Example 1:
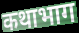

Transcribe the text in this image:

कथाभाग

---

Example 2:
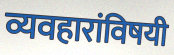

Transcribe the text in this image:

व्यवहारांविषयी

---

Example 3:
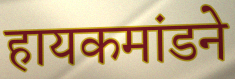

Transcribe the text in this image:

हायकमांडने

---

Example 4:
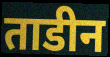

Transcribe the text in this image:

ताडीन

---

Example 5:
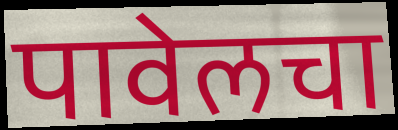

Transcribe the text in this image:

पावेलचा